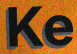
Ke